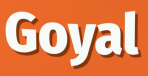
Goyal